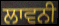
ਲਾਵਨੀ